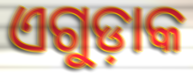
ଏଗୁଡ଼ାକ